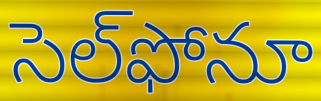
సెల్‌ఫోనూ